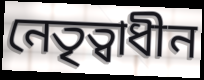
নেতৃত্বাধীন